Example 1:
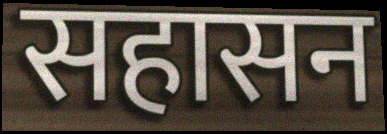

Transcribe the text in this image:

सहासन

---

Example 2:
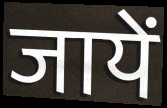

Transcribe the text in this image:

जायें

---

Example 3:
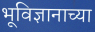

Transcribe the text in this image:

भूविज्ञानाच्या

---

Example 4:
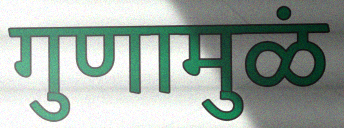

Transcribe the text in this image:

गुणामुळं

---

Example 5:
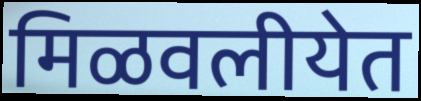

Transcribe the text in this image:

मिळवलीयेत